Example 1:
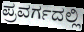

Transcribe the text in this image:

ಪ್ರವರ್ಗದಲ್ಲಿ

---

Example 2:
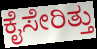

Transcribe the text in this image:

ಕೈಸೇರಿತ್ತು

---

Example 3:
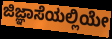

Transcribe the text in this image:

ಜಿಜ್ಞಾಸೆಯಲ್ಲಿಯೇ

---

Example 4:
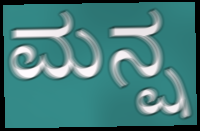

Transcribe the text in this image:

ಮನ್ಷ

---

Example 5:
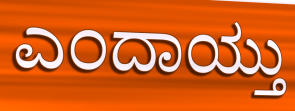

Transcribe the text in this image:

ಎಂದಾಯ್ತು